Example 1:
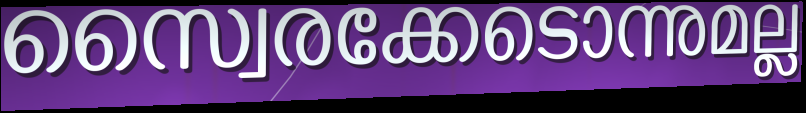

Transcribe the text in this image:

സ്വൈരക്കേടൊന്നുമല്ല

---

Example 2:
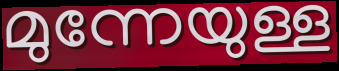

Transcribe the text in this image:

മുന്നേയുള്ള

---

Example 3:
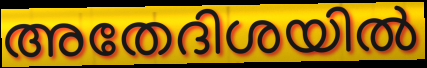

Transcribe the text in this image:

അതേദിശയിൽ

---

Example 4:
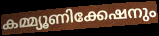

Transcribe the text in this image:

കമ്മ്യൂണിക്കേഷനും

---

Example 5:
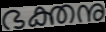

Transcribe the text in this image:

ഭക്തനു